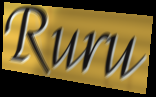
Ruru